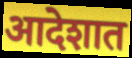
आदेशात